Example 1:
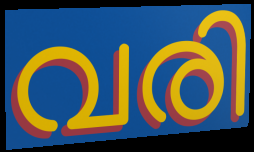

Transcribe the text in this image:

വരി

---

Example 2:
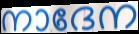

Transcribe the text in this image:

നാദേന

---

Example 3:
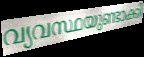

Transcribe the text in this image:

വ്യവസ്ഥയുണ്ടാക്കി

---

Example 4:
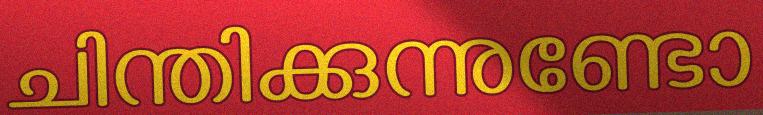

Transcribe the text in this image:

ചിന്തിക്കുന്നുണ്ടോ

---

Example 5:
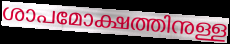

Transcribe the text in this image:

ശാപമോക്ഷത്തിനുള്ള